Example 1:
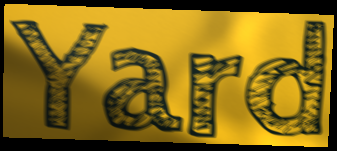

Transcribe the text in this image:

Yard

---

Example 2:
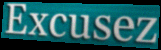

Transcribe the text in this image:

Excusez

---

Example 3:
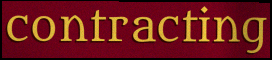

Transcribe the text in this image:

contracting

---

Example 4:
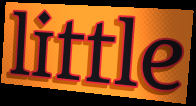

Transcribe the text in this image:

little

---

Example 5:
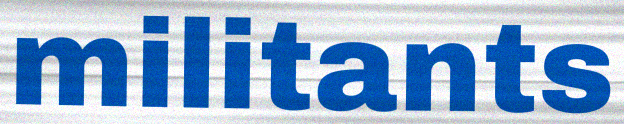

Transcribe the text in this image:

militants